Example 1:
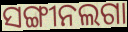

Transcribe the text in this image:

ସଙ୍ଗୀନଲଗା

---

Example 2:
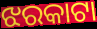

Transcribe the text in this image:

ଝରକାଟା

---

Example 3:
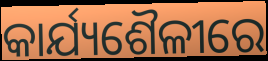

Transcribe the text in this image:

କାର୍ଯ୍ୟଶୈଳୀରେ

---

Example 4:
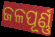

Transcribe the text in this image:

ଜଳପୂର୍ଣ୍ଣ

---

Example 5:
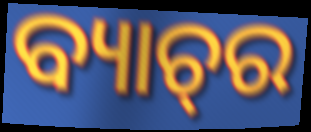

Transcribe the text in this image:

ବ୍ୟାଚ୍‌ର